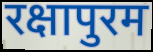
रक्षापुरम